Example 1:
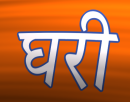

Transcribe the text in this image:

घरी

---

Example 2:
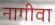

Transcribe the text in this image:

नागीवा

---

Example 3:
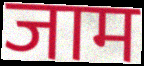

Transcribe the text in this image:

जाम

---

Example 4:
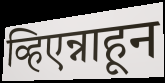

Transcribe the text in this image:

व्हिएन्नाहून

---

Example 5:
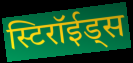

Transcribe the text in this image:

स्टिरॉईड्स